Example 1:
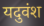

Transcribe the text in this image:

यदुवंश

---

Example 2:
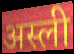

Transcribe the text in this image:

अस्ली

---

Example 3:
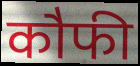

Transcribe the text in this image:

कौफी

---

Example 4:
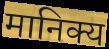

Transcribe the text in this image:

मानिक्य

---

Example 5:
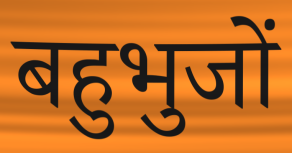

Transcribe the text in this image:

बहुभुजों